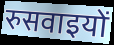
रुसवाइयों